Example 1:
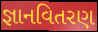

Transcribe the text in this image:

જ્ઞાનવિતરણ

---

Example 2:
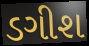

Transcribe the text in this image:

ડગીશ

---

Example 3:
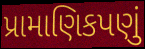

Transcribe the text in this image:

પ્રામાણિકપણું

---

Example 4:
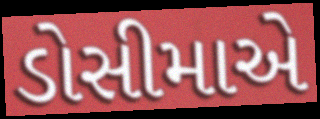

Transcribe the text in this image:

ડોસીમાએ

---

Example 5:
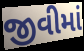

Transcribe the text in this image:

જીવીમાં